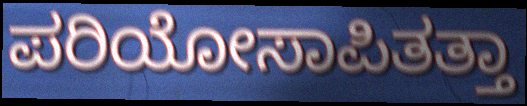
ಪರಿಯೋಸಾಪಿತತ್ತಾ